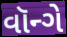
વૉન્ગે